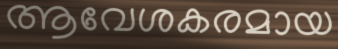
ആവേശകരമായ